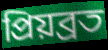
প্রিয়ব্রত